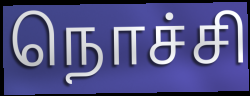
நொச்சி